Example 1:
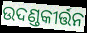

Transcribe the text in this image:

ଉଦଣ୍ଡକୀର୍ତ୍ତନ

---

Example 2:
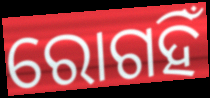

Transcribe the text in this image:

ରୋଗହିଁ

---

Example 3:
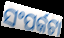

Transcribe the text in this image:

ସଂପର୍କଟା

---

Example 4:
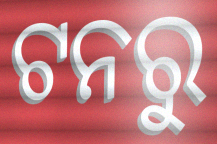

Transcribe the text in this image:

ଟନରୁ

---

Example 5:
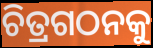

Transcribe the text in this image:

ଚିତ୍ରଗଠନକୁ